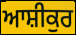
ਆਸ਼ੀਕੁਰ